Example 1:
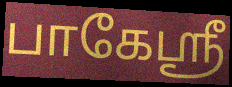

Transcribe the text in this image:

பாகேஸ்ரீ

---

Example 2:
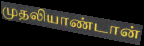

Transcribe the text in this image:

முதலியாண்டான்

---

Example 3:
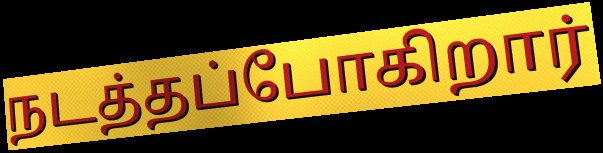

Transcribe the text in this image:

நடத்தப்போகிறார்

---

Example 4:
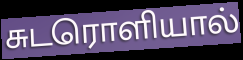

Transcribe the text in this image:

சுடரொளியால்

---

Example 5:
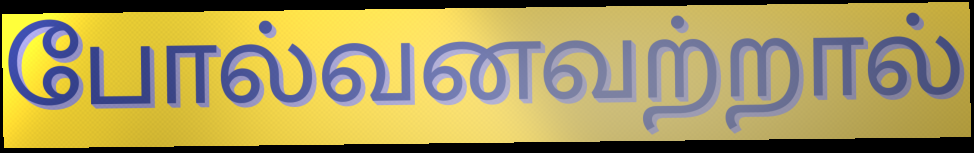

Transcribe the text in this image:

போல்வனவற்றால்